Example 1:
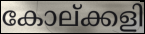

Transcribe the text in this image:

കോല്ക്കളി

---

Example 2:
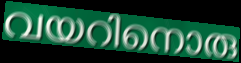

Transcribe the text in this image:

വയറിനൊരു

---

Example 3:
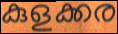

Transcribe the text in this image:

കുളക്കര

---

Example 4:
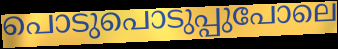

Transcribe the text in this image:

പൊടുപൊടുപ്പുപോലെ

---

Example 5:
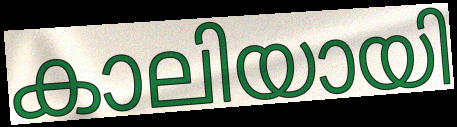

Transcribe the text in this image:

കാലിയായി